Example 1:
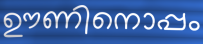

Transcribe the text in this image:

ഊണിനൊപ്പം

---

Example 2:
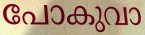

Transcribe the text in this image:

പോകുവാ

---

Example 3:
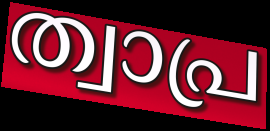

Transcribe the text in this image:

ത്വാപ്ര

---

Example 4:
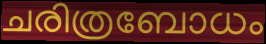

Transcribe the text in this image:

ചരിത്രബോധം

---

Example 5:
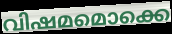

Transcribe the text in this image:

വിഷമമൊക്കെ